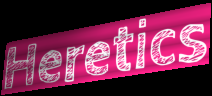
Heretics